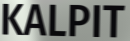
KALPIT